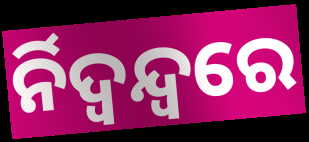
ର୍ନିଦ୍ୱନ୍ଦ୍ୱରେ